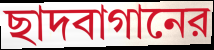
ছাদবাগানের